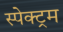
स्पेक्ट्रम